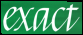
exact